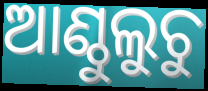
ଆଣ୍ଠୁଲୁଚୁ